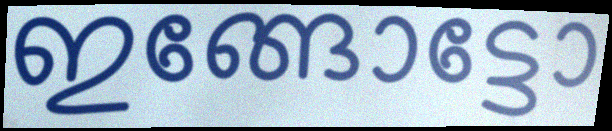
ഇങ്ങോട്ടോ